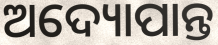
ଅଦ୍ୟୋପାନ୍ତ